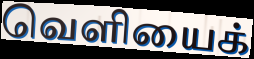
வெளியைக்